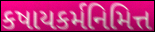
કષાયકર્મનિમિત્ત